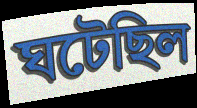
ঘটেছিল